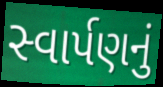
સ્વાર્પણનું